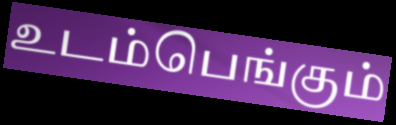
உடம்பெங்கும்